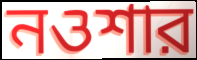
নওশার